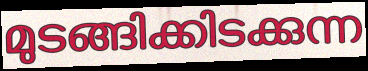
മുടങ്ങിക്കിടക്കുന്ന